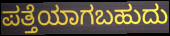
ಪತ್ತೆಯಾಗಬಹುದು